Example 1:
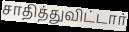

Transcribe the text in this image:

சாதித்துவிட்டார்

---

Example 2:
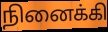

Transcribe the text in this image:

நினைக்கி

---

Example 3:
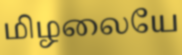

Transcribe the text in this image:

மிழலையே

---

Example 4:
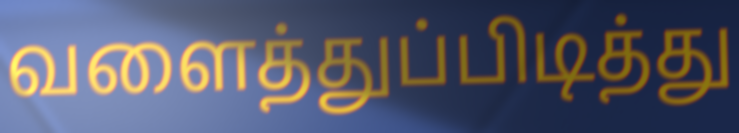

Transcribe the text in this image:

வளைத்துப்பிடித்து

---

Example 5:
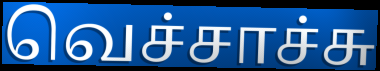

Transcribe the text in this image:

வெச்சாச்சு